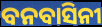
ବନବାସିନୀ